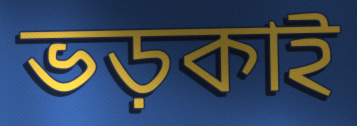
ভড়কাই